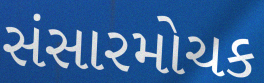
સંસારમોચક